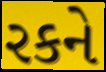
રકને